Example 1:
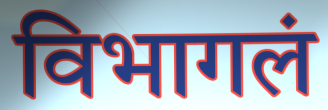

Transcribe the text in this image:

विभागलं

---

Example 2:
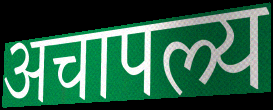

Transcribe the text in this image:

अचापल्य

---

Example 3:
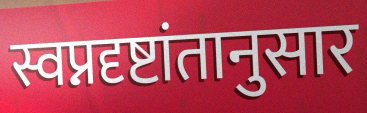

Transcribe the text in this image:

स्वप्नदृष्टांतानुसार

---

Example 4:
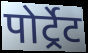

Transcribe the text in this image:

पोर्ट्रेट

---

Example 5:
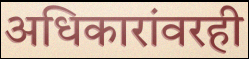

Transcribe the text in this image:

अधिकारांवरही